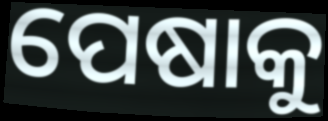
ପେଷାକୁ